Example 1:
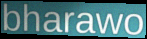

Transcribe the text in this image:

bharawo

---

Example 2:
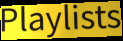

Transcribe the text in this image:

Playlists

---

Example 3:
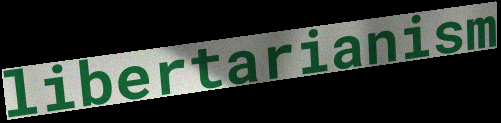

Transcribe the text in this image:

libertarianism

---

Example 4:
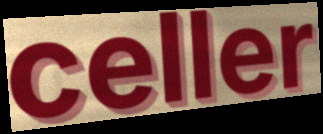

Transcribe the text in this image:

celler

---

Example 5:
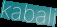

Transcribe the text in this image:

kabali